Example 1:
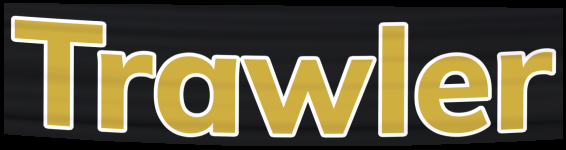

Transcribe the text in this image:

Trawler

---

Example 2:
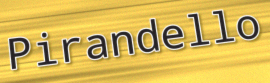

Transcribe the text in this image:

Pirandello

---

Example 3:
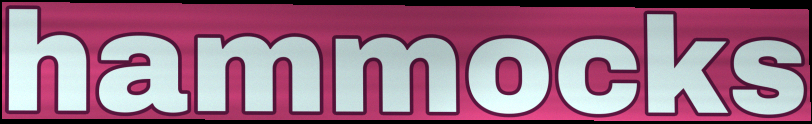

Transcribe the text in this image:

hammocks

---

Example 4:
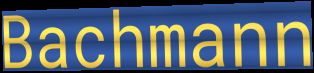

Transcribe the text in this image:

Bachmann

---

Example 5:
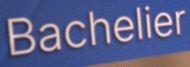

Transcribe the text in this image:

Bachelier